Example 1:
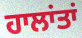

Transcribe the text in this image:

ਹਾਲਾਂਤਾਂ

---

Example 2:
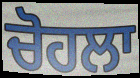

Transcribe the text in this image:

ਚੋਹਲਾ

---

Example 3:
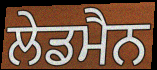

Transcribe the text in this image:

ਲੇਡਮੈਨ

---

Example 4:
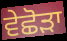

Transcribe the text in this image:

ਵੇਛੋੜਾ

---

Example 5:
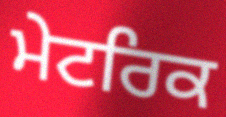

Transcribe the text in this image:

ਮੇਟਰਿਕ